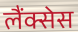
लैंक्सेस